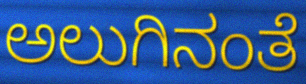
ಅಲುಗಿನಂತೆ